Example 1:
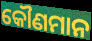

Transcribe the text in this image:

କୌଣମାନ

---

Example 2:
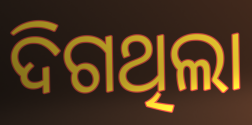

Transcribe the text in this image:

ଦିଗଥିଲା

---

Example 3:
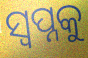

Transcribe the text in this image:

ସ୍ୱପ୍ନକୁ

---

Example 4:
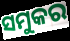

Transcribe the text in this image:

ସମୁକର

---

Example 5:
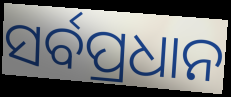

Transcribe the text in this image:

ସର୍ବପ୍ରଧାନ